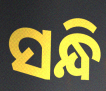
ସନ୍ଧି